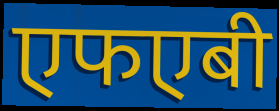
एफएबी